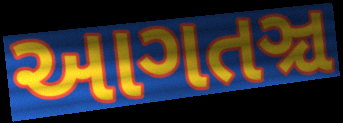
આગતઞ્ચ